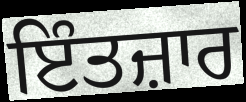
ਇੰਤਜ਼ਾਰ